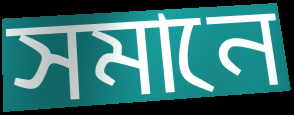
সমানে